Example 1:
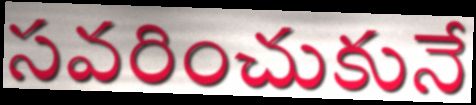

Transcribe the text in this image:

సవరించుకునే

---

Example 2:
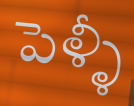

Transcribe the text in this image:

పెళ్ళీ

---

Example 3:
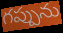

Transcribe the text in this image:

గప్పును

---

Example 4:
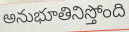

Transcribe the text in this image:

అనుభూతినిస్తోంది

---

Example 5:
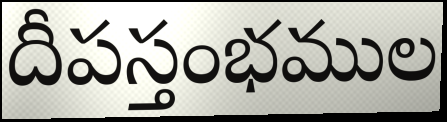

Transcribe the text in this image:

దీపస్తంభముల